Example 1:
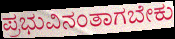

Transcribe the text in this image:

ಪ್ರಭುವಿನಂತಾಗಬೇಕು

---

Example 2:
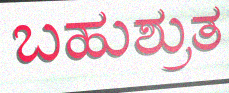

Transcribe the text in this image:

ಬಹುಶ್ರುತ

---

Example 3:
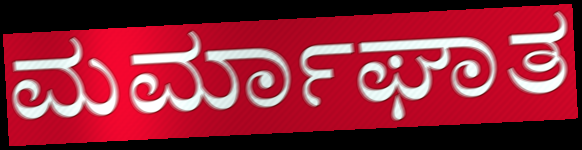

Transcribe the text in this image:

ಮರ್ಮಾಘಾತ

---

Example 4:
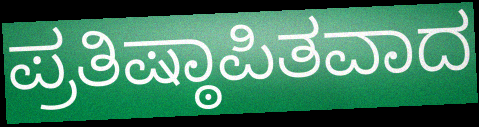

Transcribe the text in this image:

ಪ್ರತಿಷ್ಠಾಪಿತವಾದ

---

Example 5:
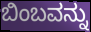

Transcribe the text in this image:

ಬಿಂಬವನ್ನು